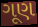
ગૂણ